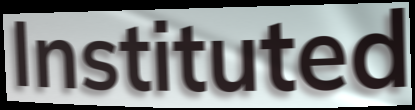
Instituted